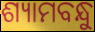
ଶ୍ୟାମବନ୍ଧୁ